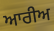
ਆਰੀਅ